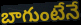
బాగుంటేనే